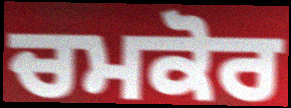
ਚਮਕੋਰ